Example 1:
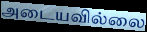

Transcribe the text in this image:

அடையவில்லை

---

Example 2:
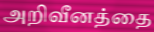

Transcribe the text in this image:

அறிவீனத்தை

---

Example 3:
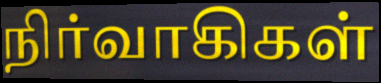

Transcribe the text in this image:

நிர்வாகிகள்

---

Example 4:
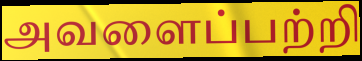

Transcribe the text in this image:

அவளைப்பற்றி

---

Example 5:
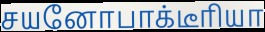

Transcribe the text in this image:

சயனோபாக்டீரியா